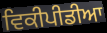
ਵਿਕੀਪੀਡੀਆ